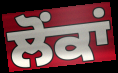
ਲੋਂਕਾਂ